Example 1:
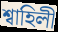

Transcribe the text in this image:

শ্বাহিলী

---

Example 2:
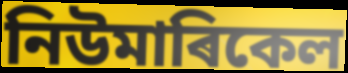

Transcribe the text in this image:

নিউমাৰিকেল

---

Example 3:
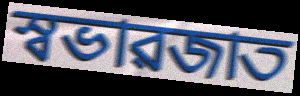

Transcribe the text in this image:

স্বভাৱজাত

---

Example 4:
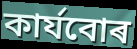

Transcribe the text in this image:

কাৰ্যবোৰ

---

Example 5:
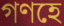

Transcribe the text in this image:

গণহে